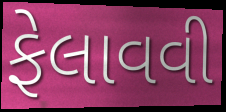
ફેલાવવી